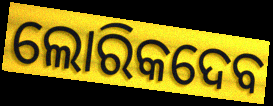
ଲୋରିକଦେବ